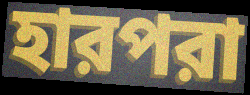
হারপরা